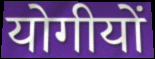
योगीयों